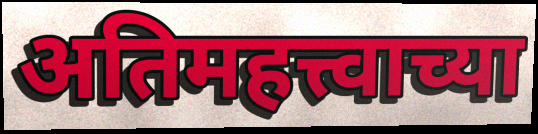
अतिमहत्त्वाच्या